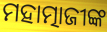
ମହାତ୍ମାଜୀଙ୍କ